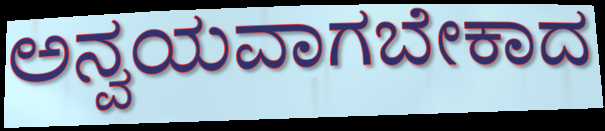
ಅನ್ವಯವಾಗಬೇಕಾದ